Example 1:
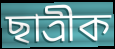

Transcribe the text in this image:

ছাত্ৰীক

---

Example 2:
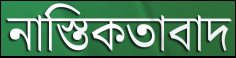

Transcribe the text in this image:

নাস্তিকতাবাদ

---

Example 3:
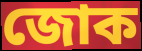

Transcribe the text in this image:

জোক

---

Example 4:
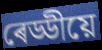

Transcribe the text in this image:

ৰেড্ডীয়ে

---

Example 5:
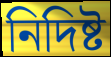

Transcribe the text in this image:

নিদিষ্ট